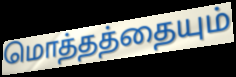
மொத்தத்தையும்